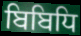
ਬਿਬਿਧਿ